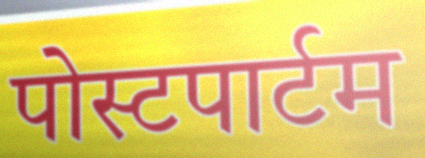
पोस्टपार्टम